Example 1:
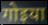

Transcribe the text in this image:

गोइया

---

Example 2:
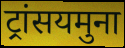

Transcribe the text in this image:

ट्रांसयमुना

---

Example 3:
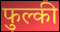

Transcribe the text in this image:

फुल्की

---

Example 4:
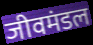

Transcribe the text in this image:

जीवमंडल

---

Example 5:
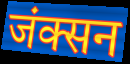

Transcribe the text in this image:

जंक्सन